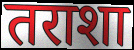
तराशा